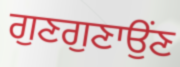
ਗੁਣਗੁਣਾਉਂਣ